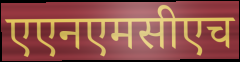
एएनएमसीएच